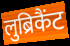
लुब्रिकैंट